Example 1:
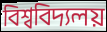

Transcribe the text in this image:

বিশ্ববিদ্যলয়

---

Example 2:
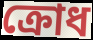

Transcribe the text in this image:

ক্ৰোধ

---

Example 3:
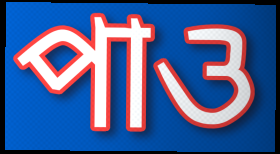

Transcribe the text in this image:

পাও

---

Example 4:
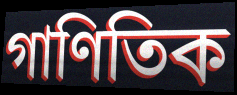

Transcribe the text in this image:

গাণিতিক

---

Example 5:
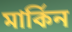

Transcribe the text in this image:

মাৰ্কিন